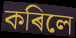
কৰিলে